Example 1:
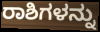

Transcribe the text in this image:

ರಾಶಿಗಳನ್ನು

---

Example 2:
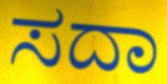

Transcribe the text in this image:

ಸದಾ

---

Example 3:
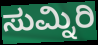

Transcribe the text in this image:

ಸುಮ್ನಿರಿ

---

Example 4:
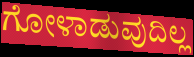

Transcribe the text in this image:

ಗೋಳಾಡುವುದಿಲ್ಲ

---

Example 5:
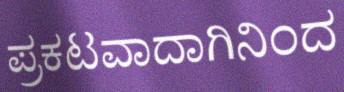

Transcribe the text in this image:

ಪ್ರಕಟವಾದಾಗಿನಿಂದ